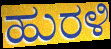
ಹುರಳಿ